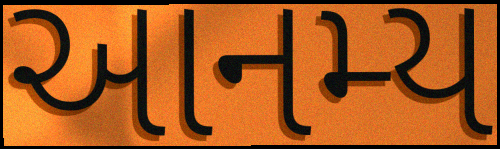
આનમ્ય